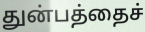
துன்பத்தைச்